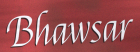
Bhawsar